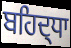
ਬਹਿਦ੍ਧਾ